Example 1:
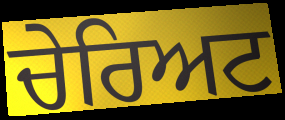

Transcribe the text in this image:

ਚੇਰਿਅਟ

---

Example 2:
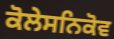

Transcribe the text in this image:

ਕੋਲੇਸਨਿਕੋਵ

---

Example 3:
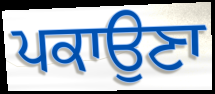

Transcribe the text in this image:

ਪਕਾਉਣਾ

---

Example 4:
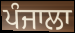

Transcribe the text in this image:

ਪੰਜਾਲਾ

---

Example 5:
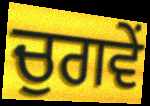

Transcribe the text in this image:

ਚੁਗਵੇਂ